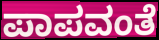
ಪಾಪವಂತೆ